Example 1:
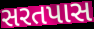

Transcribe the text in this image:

સરતપાસ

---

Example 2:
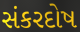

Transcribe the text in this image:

સંકરદોષ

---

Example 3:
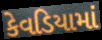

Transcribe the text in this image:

કેવડિયામાં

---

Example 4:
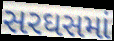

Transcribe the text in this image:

સરઘસમાં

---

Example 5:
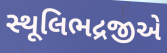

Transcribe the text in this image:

સ્થૂલિભદ્રજીએ